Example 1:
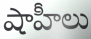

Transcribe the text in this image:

షాహీలు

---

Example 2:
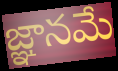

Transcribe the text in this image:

జ్ఞానమే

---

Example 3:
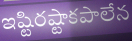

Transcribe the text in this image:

ఇష్టిరష్టాకపాలేన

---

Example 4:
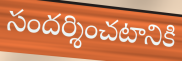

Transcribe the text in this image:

సందర్శించటానికి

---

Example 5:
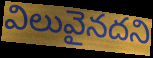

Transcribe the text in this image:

విలువైనదని